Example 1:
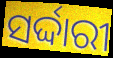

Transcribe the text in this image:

ସର୍ଦ୍ଦାରୀ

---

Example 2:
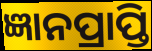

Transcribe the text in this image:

ଜ୍ଞାନପ୍ରାପ୍ତି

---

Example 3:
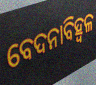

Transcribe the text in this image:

ବେଦନାବିହ୍ୱଳ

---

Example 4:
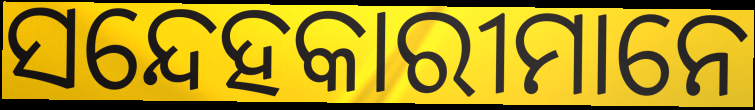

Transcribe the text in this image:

ସନ୍ଦେହକାରୀମାନେ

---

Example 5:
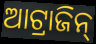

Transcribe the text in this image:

ଆଟ୍ରାଜିନ୍